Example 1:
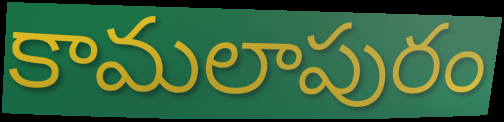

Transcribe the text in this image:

కామలాపురం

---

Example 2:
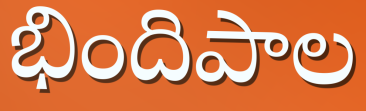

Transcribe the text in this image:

భిందిపాల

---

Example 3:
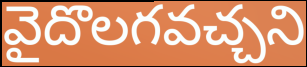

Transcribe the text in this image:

వైదొలగవచ్చని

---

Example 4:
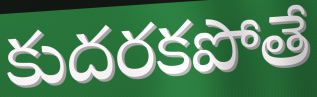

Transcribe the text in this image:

కుదరకపోతే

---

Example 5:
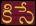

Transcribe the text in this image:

కిసే